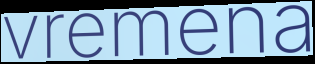
vremena